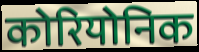
कोरियोनिक